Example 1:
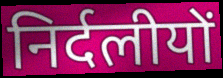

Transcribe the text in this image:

निर्दलीयों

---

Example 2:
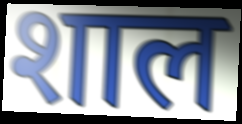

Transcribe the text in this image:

शाल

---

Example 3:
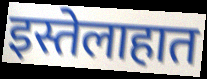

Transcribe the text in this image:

इस्तेलाहात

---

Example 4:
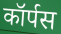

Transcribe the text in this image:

कॉर्पस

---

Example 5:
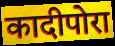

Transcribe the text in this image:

कादीपोरा